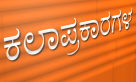
ಕಲಾಪ್ರಕಾರಗಳ